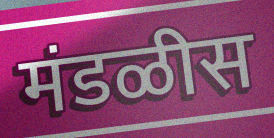
मंडळीस